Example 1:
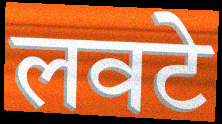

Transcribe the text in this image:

लवटे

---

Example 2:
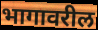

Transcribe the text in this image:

भागावरील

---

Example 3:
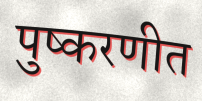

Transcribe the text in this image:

पुष्करणीत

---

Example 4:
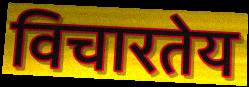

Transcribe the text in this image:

विचारतेय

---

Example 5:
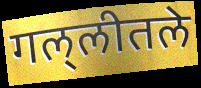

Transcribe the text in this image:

गल्लीतले